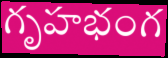
గృహభంగ